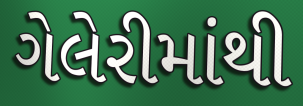
ગેલેરીમાંથી